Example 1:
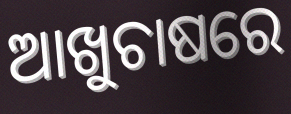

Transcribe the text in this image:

ଆଖୁଚାଷରେ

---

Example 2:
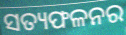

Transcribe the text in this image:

ସତ୍ୟଫଳନର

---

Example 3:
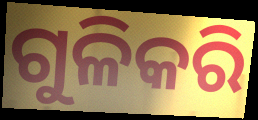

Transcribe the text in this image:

ଗୁଳିକରି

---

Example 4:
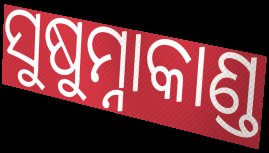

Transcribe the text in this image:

ସୁଷୁମ୍ନାକାଣ୍ଡ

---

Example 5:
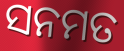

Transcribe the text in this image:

ସନମତ